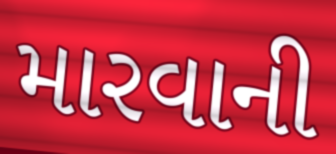
મારવાની